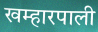
खम्हारपाली